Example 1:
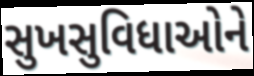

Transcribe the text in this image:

સુખસુવિધાઓને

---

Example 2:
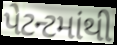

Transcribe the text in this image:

પેટન્ટમાંથી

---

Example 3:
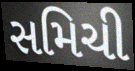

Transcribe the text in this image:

સમિચી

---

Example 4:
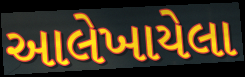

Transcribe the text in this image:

આલેખાયેલા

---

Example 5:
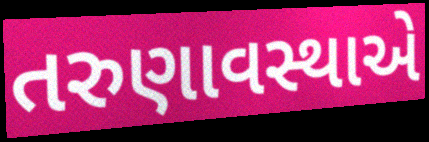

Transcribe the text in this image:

તરુણાવસ્થાએ